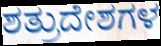
ಶತ್ರುದೇಶಗಳ